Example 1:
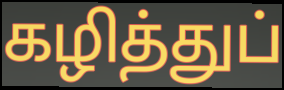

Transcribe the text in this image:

கழித்துப்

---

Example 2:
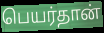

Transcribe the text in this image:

பெயர்தான்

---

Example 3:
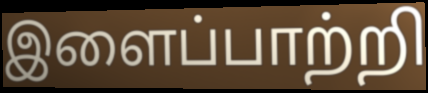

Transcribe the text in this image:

இளைப்பாற்றி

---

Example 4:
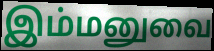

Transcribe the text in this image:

இம்மனுவை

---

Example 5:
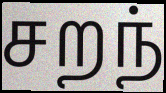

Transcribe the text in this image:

சறந்